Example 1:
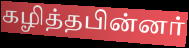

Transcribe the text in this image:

கழித்தபின்னர்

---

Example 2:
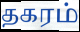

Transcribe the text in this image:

தகரம்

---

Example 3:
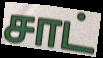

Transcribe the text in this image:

சாட்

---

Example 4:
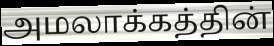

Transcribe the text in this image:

அமலாக்கத்தின்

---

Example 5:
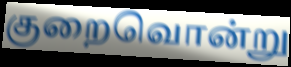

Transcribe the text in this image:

குறைவொன்று